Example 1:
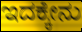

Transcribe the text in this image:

ಇದಕ್ಕೇನು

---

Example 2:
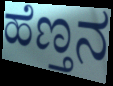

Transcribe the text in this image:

ಹೆಣ್ತನ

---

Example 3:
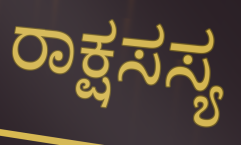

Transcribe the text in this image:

ರಾಕ್ಷಸಸ್ಯ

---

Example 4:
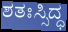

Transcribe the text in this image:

ಶತಃಸ್ಸಿದ್ಧ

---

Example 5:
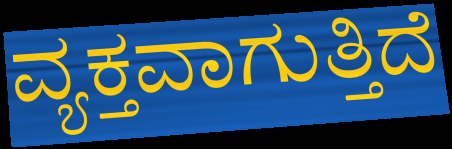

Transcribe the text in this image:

ವ್ಯಕ್ತವಾಗುತ್ತಿದೆ